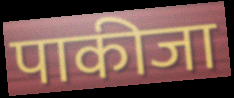
पाकीजा